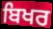
ਬਿਖਰ